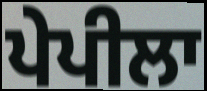
ਪੇਪੀਲਾ